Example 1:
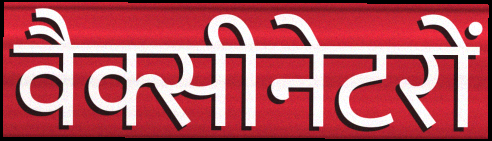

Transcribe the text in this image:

वैक्सीनेटरों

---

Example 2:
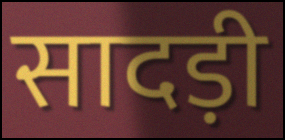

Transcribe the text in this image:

सादड़ी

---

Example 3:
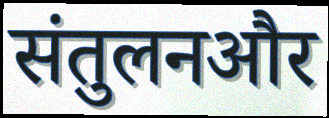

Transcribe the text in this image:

संतुलनऔर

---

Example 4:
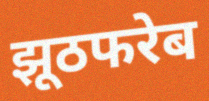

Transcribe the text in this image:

झूठफरेब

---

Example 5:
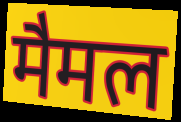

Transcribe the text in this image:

मैमल